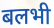
बलभी